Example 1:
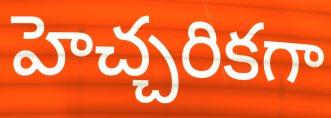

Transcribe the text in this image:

హెచ్చరికగా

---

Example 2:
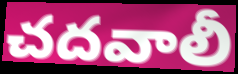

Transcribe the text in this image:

చదవాలీ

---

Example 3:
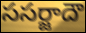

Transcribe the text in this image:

ససర్జాదౌ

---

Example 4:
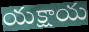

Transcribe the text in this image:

యక్షాయ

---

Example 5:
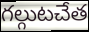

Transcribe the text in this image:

గల్గుటచేత